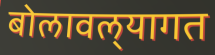
बोलावल्यागत